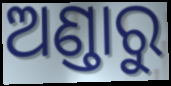
ଅଣ୍ଡାରୁ